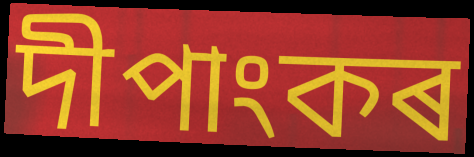
দীপাংকৰ